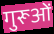
गुरूओं